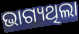
ଭାଗ୍ୟଥିଲା